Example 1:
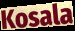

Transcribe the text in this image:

Kosala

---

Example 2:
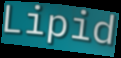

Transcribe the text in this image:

Lipid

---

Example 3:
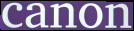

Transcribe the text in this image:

canon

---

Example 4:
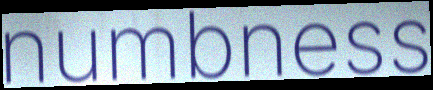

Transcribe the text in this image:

numbness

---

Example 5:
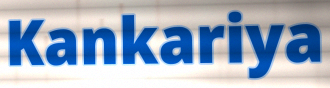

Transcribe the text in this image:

Kankariya